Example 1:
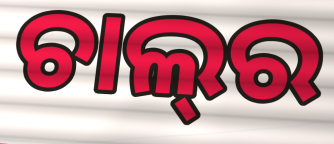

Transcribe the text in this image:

ଚାଲ୍‌ର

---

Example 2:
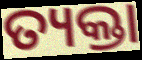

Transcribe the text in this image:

ତ୍ୟକ୍ତା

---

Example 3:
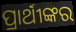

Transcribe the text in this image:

ପ୍ରାର୍ଥୀଙ୍କର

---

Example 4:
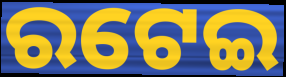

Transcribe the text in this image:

ରଟେଇ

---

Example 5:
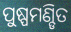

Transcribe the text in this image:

ପୁଷ୍ପମଣ୍ଡିତ